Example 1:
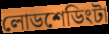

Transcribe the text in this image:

লোডশেডিংটা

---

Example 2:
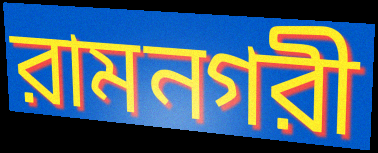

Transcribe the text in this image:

রামনগরী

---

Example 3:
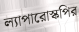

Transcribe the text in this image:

ল্যাপারোস্কপির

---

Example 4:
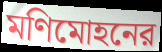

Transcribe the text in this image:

মণিমোহনের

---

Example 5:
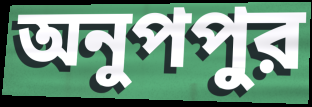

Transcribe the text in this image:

অনুপপুর